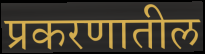
प्रकरणातील